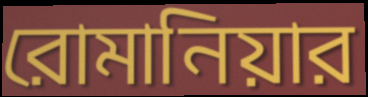
রোমানিয়ার